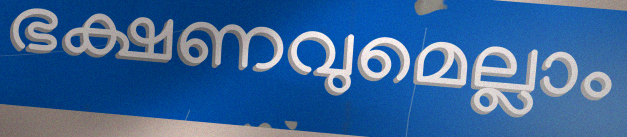
ഭക്ഷണവുമെല്ലാം